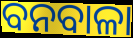
ବନବାଳା